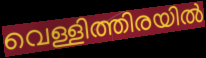
വെള്ളിത്തിരയിൽ